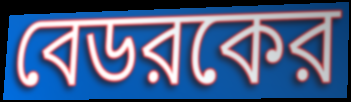
বেডরকের